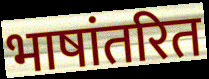
भाषांतरित